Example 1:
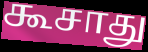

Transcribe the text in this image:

கூசாது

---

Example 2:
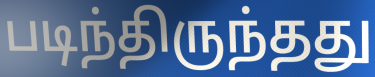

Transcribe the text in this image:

படிந்திருந்தது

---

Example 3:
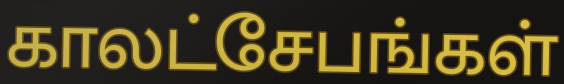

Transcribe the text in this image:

காலட்சேபங்கள்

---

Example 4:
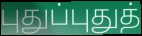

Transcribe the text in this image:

புதுப்புதுத்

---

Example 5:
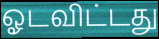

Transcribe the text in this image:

ஓடவிட்டது